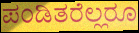
ಪಂಡಿತರೆಲ್ಲರೂ